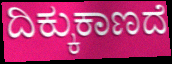
ದಿಕ್ಕುಕಾಣದೆ